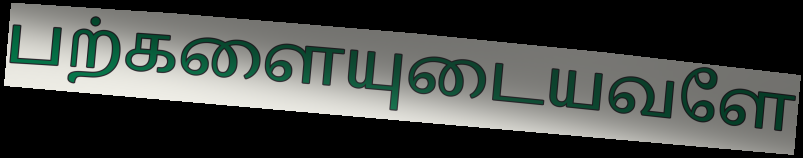
பற்களையுடையவளே